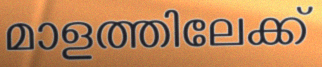
മാളത്തിലേക്ക്